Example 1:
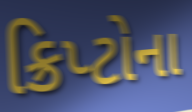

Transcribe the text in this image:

ક્રિપ્ટોના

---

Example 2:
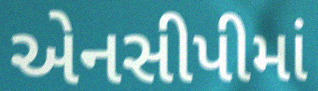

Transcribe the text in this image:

એનસીપીમાં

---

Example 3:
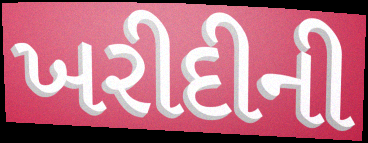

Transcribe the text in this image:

ખરીદીની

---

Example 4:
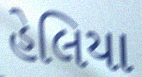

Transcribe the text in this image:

હેલિયા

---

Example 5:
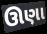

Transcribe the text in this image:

ઊણા